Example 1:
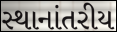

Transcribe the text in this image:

સ્થાનાંતરીય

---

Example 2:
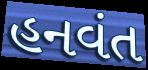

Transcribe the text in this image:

હનવંત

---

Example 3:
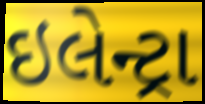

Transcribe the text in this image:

ઇલેન્ટ્રા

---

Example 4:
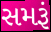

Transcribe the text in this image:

સમરૂં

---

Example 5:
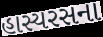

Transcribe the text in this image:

હાસ્યરસના